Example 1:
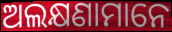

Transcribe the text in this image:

ଅଲକ୍ଷଣାମାନେ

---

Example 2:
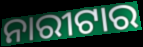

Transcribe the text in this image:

ନାରୀଟାର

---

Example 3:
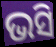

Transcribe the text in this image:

ଭସି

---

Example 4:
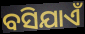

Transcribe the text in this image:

ବସିଯାଏଁ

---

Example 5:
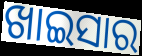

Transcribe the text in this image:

ଖାଇସାର